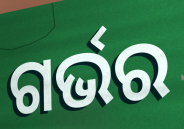
ଗର୍ଭର